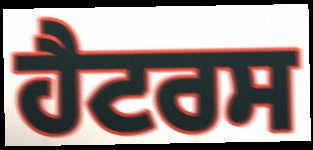
ਹੈਟਰਸ